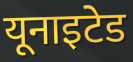
यूनाइटेड